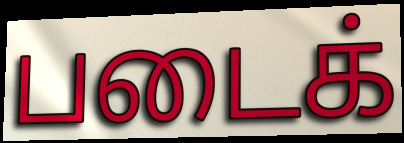
படைக்